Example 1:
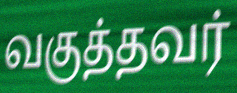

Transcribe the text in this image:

வகுத்தவர்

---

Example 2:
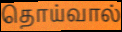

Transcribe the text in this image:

தொய்வால்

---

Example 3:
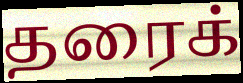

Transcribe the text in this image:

தரைக்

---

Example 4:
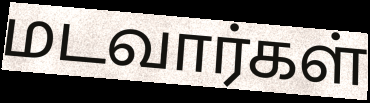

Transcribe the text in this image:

மடவார்கள்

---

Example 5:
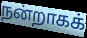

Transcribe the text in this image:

நன்றாகக்